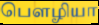
பௌழியா